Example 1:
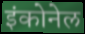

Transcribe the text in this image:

इंकोनेल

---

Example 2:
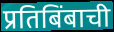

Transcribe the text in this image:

प्रतिबिंबाची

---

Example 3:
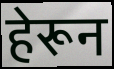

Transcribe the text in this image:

हेरून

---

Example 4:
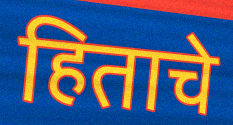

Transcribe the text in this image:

हिताचे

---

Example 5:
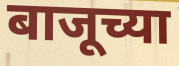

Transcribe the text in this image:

बाजूच्या